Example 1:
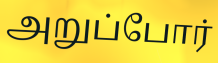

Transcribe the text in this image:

அறுப்போர்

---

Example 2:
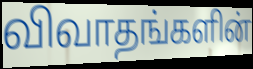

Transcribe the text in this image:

விவாதங்களின்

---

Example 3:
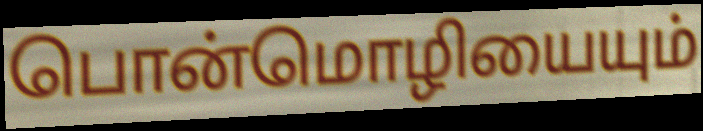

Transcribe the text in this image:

பொன்மொழியையும்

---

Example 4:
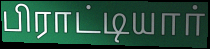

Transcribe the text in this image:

பிராட்டியார்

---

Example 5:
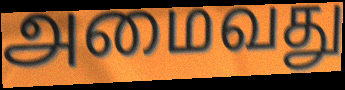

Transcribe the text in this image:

அமைவது